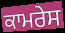
ਕਾਮਰੇਸ